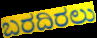
ಬರದಿರಲು